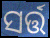
ସର୍ତ୍ତ